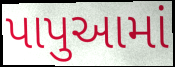
પાપુઆમાં